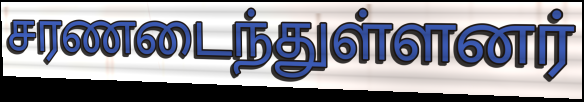
சரணடைந்துள்ளனர்